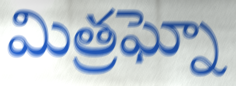
మిత్రఘ్నో